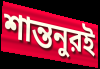
শান্তনুরই